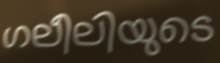
ഗലീലിയുടെ